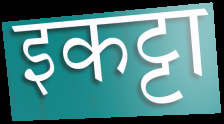
इकट्टा